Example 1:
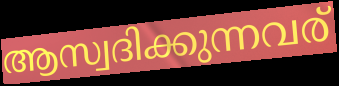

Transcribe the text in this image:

ആസ്വദിക്കുന്നവര്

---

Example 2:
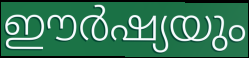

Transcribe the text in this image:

ഈർഷ്യയും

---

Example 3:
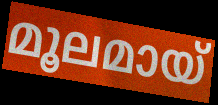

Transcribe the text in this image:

മൂലമായ്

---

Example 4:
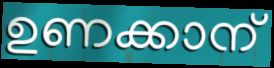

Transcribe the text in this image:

ഉണക്കാന്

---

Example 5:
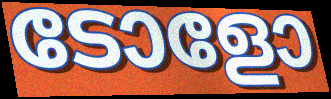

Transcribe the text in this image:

ടോളോ